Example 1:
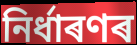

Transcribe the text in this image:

নিৰ্ধাৰণৰ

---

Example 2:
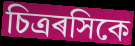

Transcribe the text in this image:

চিত্ৰৰসিকে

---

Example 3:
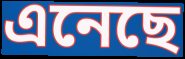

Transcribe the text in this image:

এনেছে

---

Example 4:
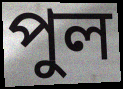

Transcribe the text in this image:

পুল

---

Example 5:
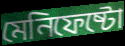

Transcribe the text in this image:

মেনিফেষ্টো